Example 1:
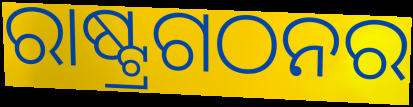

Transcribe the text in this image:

ରାଷ୍ଟ୍ରଗଠନର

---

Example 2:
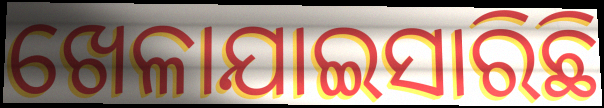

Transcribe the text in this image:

ଖେଳାଯାଇସାରିଛି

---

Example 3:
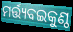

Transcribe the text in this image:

ମର୍ତ୍ତ୍ୟବଇକୁଣ୍ଠ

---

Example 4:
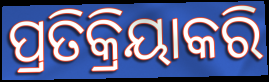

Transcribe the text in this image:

ପ୍ରତିକ୍ରିୟାକରି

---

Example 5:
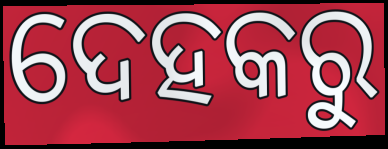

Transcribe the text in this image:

ଦେହକରୁ